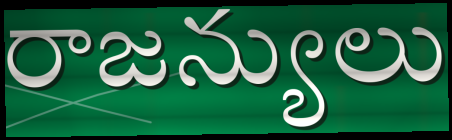
రాజన్యులు